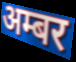
अम्बर